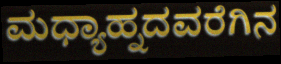
ಮಧ್ಯಾಹ್ನದವರೆಗಿನ